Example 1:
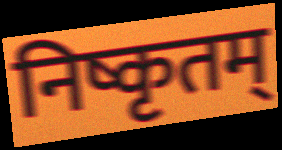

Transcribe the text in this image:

निष्कृतम्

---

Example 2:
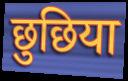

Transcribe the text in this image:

छुछिया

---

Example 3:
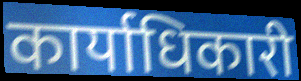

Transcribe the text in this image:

कार्याधिकारी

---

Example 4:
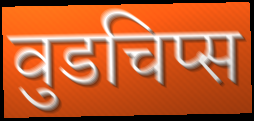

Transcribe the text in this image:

वुडचिप्स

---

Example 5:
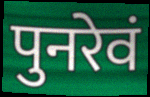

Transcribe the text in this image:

पुनरेवं